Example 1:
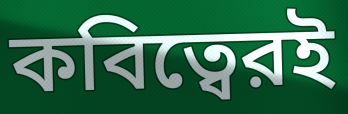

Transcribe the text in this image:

কবিত্বেরই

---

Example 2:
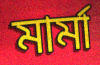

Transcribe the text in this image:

মার্মা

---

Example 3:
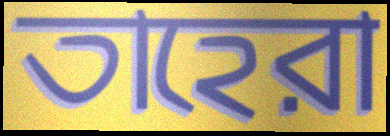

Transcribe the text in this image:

তাহেরা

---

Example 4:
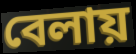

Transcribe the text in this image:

বেলায়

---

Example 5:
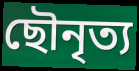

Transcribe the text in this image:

ছৌনৃত্য